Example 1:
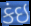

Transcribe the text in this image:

કંઇ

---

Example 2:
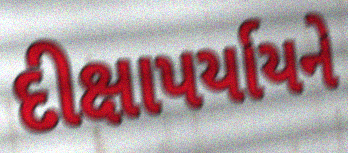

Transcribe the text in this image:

દીક્ષાપર્યાયને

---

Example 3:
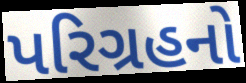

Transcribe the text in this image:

પરિગ્રહનો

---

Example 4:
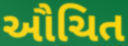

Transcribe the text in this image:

ઔચિત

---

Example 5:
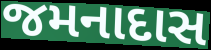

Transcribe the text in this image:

જમનાદાસ